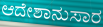
ಆದೇಶಾನುಸಾರ